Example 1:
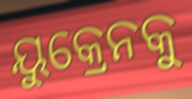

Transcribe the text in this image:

ୟୁକ୍ରେନକୁ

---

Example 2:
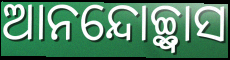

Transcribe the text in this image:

ଆନନ୍ଦୋଚ୍ଛ୍ୱାସ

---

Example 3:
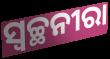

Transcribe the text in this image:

ସ୍ବଚ୍ଛନୀରା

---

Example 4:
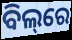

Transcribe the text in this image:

ବିଲ୍‌ରେ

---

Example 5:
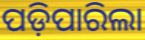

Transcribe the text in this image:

ପଡ଼ିପାରିଲା